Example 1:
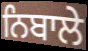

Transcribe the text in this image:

ਨਿਬਾਲੇ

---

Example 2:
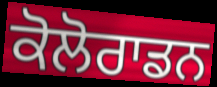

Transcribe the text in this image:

ਕੋਲੋਰਾਡਨ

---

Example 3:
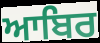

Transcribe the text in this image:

ਆਬਿਰ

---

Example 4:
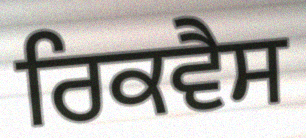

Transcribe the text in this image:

ਰਿਕਵੈਸ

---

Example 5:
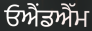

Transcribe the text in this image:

ਓਐਂਡਐੱਮ